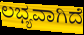
ಲಭ್ಯವಾಗಿದೆ